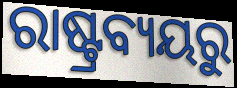
ରାଷ୍ଟ୍ରବ୍ୟୟରୁ